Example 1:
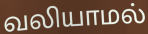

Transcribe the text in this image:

வலியாமல்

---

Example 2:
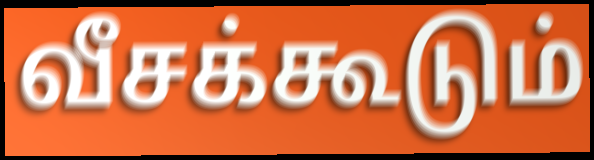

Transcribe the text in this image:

வீசக்கூடும்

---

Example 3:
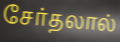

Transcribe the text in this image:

சேர்தலால்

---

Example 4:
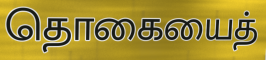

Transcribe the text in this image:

தொகையைத்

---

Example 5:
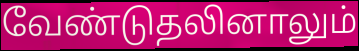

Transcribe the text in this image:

வேண்டுதலினாலும்